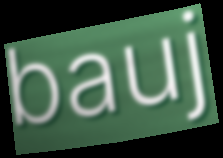
bauj